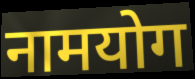
नामयोग